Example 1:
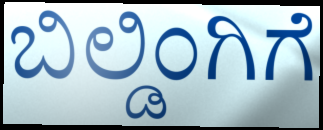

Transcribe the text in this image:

ಬಿಲ್ಡಿಂಗಿಗೆ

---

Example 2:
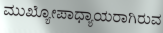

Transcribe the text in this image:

ಮುಖ್ಯೋಪಾಧ್ಯಾಯರಾಗಿರುವ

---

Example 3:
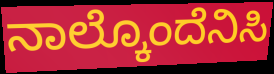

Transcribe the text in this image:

ನಾಲ್ಕೊಂದೆನಿಸಿ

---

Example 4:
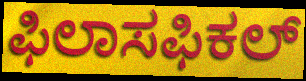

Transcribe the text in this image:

ಫಿಲಾಸಫಿಕಲ್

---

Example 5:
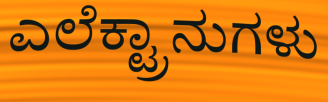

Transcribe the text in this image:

ಎಲೆಕ್ಟ್ರಾನುಗಳು